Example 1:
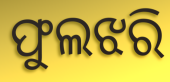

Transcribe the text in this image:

ଫୁଲଝରି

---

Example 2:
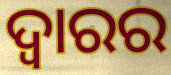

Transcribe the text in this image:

ଦ୍ୱାରର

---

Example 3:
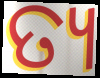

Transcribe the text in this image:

ତ୍ୟ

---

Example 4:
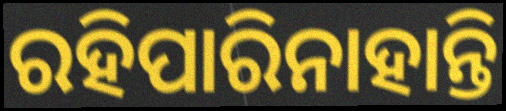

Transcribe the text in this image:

ରହିପାରିନାହାନ୍ତି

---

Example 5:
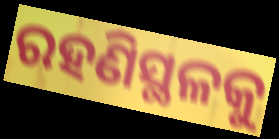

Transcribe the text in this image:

ରହଣିସ୍ଥଳକୁ